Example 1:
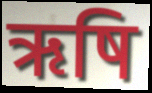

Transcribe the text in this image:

ॠषि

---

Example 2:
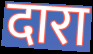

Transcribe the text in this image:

दारा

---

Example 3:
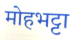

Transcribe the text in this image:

मोहभट्टा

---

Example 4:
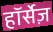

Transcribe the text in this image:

हॉर्सेज़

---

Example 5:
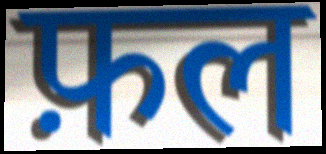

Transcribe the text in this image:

फ़ल